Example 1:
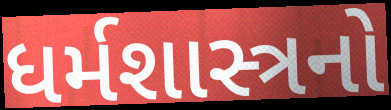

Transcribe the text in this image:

ધર્મશાસ્ત્રનો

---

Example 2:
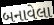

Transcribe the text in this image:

બનાવેલા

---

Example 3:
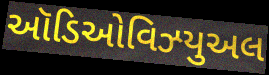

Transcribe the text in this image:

ઑડિઓવિઝ્યુઅલ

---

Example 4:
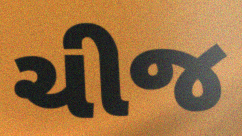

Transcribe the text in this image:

ચીજ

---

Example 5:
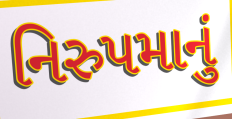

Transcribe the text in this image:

નિરુપમાનું